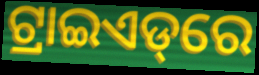
ଟ୍ରାଇଏଡ୍‌ରେ